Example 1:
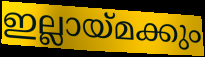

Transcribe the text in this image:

ഇല്ലായ്മക്കും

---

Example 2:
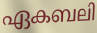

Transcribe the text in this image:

ഏകബലി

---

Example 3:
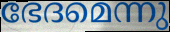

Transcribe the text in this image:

ഭേദമെന്നു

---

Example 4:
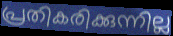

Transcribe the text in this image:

പ്രതികരിക്കുന്നില്ല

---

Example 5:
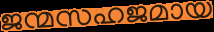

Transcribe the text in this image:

ജന്മസഹജമായ